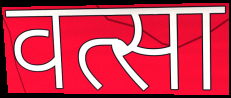
वत्सा